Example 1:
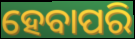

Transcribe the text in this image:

ହେବାପରି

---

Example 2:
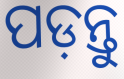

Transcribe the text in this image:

ପଡ଼ନ୍ତୁ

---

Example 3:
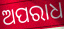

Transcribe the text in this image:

ଅପରାଧ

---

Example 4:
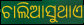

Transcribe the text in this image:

ଚାଲିଆସୁଥାଏ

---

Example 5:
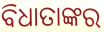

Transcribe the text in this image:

ବିଧାତାଙ୍କର